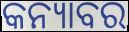
କନ୍ୟାବର